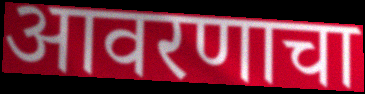
आवरणाचा